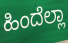
ಹಿಂದೆಲ್ಲಾ